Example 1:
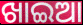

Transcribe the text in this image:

ଖାଇଆ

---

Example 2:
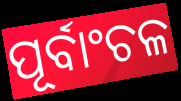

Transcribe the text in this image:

ପୂର୍ବାଂଚଳ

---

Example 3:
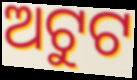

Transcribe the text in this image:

ଅଟୁଟ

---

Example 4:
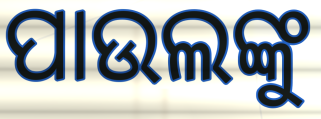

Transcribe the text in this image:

ପାଉଲଙ୍କୁ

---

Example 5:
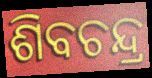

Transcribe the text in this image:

ଶିବଚନ୍ଦ୍ର